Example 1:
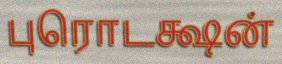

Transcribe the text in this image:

புரொடக்ஷன்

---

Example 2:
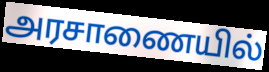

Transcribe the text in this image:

அரசாணையில்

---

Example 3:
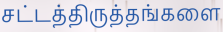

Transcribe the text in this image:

சட்டத்திருத்தங்களை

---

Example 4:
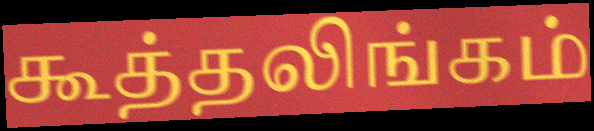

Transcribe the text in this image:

கூத்தலிங்கம்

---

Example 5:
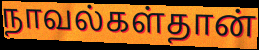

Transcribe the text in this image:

நாவல்கள்தான்